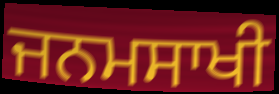
ਜਨਮਸਾਖੀ